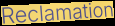
Reclamation